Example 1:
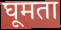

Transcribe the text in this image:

घूमता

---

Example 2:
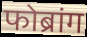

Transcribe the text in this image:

फोब्रांग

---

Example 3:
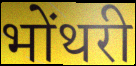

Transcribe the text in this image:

भोंथरी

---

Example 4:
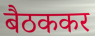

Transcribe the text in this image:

बैठककर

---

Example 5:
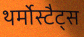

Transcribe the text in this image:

थर्मोस्टैट्स